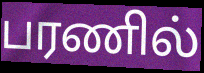
பரணில்